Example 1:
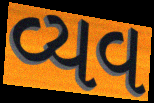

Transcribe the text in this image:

વ્યવ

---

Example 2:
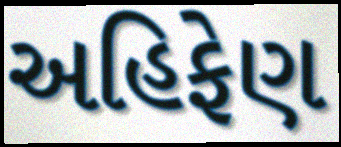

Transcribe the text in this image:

અહિફેણ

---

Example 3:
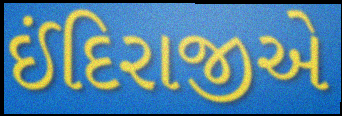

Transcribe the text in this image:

ઈંદિરાજીએ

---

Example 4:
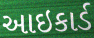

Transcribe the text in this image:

આઇકાર્ડ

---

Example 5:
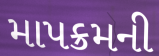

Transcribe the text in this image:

માપક્રમની